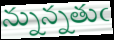
న్నున్నతుఁ